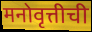
मनोवृत्तीची